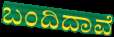
ಬಂದಿದಾವೆ